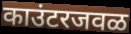
काउंटरजवळ